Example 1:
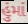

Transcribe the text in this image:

હુંમાં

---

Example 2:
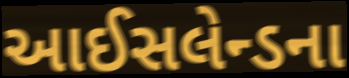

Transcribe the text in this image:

આઈસલેન્ડના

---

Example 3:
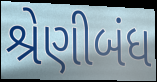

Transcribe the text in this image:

શ્રેણીબંધ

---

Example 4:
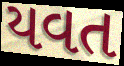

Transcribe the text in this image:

યવત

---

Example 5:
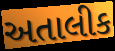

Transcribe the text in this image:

અતાલીક